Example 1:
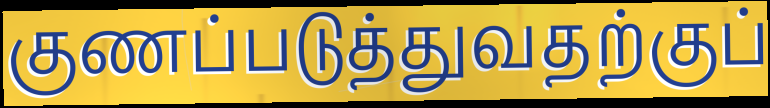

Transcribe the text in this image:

குணப்படுத்துவதற்குப்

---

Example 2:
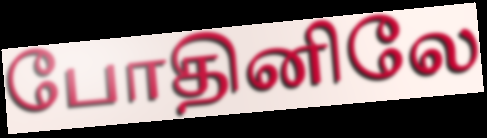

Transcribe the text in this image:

போதினிலே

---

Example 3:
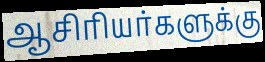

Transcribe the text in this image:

ஆசிரியர்களுக்கு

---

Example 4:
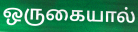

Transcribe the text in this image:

ஒருகையால்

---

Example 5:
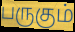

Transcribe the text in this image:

பருகும்